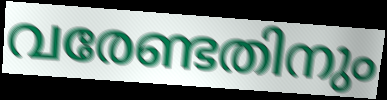
വരേണ്ടതിനും